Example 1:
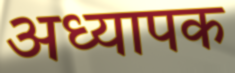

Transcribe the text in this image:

अध्‍यापक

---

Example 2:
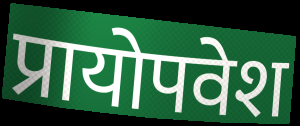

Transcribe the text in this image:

प्रायोपवेश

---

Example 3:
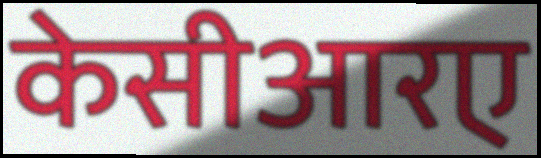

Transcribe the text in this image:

केसीआरए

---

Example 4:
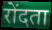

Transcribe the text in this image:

रोंदता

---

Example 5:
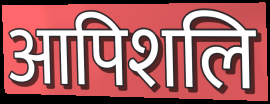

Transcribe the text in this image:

आपिशलि